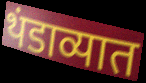
थंडाव्यात